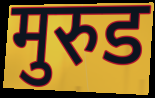
मुरुड